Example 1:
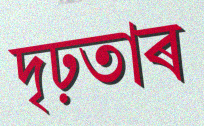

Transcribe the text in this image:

দৃঢ়তাৰ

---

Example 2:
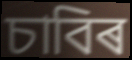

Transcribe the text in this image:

চাবিৰ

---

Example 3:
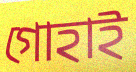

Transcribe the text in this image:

গোহাই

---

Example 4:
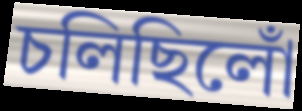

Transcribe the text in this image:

চলিছিলোঁ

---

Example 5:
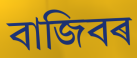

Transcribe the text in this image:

বাজিবৰ